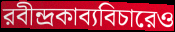
রবীন্দ্রকাব্যবিচারেও